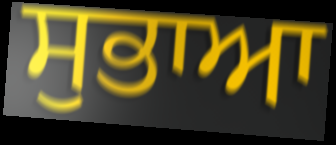
ਸੁਭਾਆ